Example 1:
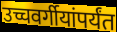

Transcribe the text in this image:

उच्चवर्गीयांपर्यंत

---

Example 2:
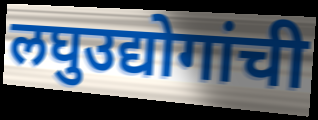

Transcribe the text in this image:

लघुउद्योगांची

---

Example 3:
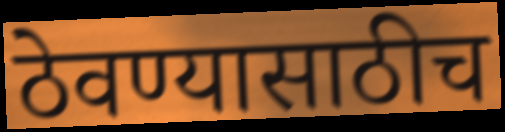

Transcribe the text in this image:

ठेवण्यासाठीच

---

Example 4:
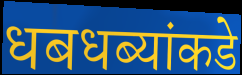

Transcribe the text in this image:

धबधब्यांकडे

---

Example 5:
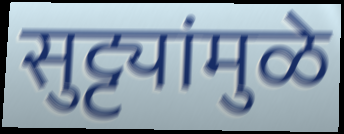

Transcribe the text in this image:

सुट्ट्यांमुळे